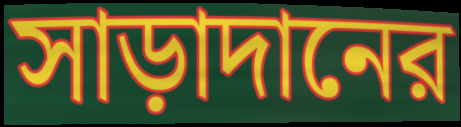
সাড়াদানের